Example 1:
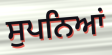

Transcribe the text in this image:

ਸੁਪਨਿਆਂ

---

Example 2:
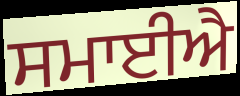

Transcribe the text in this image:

ਸਮਾਈਐ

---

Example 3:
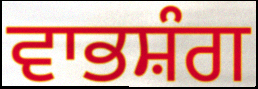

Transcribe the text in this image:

ਵਾਭਸ਼ੰਗ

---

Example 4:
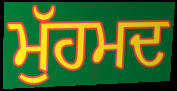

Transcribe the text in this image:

ਮੁੱਹਮਦ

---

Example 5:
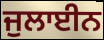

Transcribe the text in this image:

ਜੁਲਾਈਨ